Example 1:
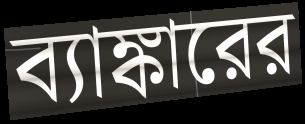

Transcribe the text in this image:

ব্যাঙ্কারের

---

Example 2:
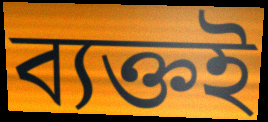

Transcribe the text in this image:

ব্যক্তই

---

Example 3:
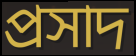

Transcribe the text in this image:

প্রসাদ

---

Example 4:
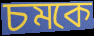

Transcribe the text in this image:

চমকে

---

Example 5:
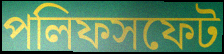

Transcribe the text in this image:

পলিফসফেট